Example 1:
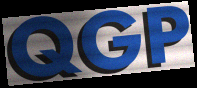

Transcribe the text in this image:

QGP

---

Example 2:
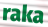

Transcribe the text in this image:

raka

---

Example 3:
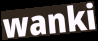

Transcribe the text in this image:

wanki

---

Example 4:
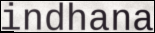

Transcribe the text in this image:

indhana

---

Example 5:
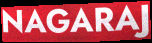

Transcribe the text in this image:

NAGARAJ